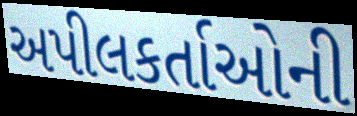
અપીલકર્તાઓની